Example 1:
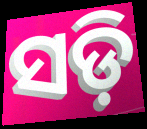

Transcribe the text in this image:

ସଡ଼ି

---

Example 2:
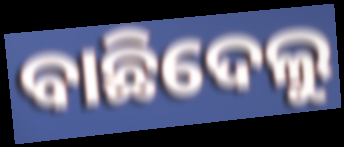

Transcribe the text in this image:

ବାଛିଦେଲୁ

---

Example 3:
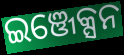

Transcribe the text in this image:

ଇଞ୍ଜେକ୍ସନ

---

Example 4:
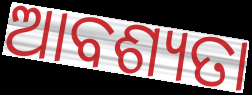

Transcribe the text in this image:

ଆବଶ୍ୟତା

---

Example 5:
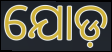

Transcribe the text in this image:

ଯୋଡ଼